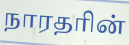
நாரதரின்